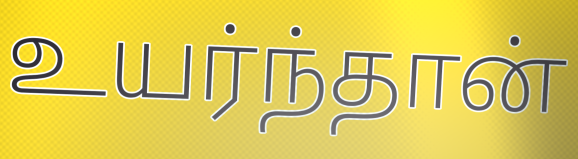
உயர்ந்தான்